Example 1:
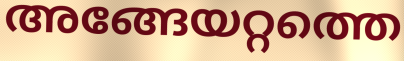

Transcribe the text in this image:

അങ്ങേയറ്റത്തെ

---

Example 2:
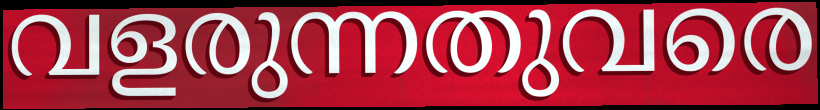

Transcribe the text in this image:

വളരുന്നതുവരെ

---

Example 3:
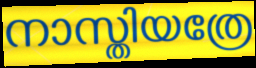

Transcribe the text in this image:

നാസ്തിയത്രേ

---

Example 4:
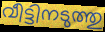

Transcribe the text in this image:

വീട്ടിനടുത്തു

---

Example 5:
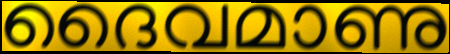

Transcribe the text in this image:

ദൈവമാണു